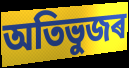
অতিভুজৰ